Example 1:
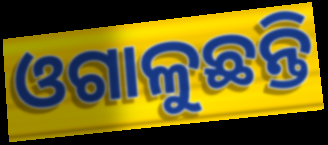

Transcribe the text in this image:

ଓଗାଳୁଛନ୍ତି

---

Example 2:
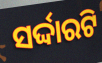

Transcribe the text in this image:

ସର୍ଦ୍ଦାରଟି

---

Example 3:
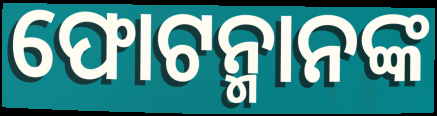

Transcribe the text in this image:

ଫୋଟନ୍ମାନଙ୍କ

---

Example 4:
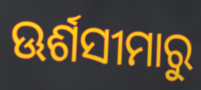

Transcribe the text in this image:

ଊର୍ଶସୀମାରୁ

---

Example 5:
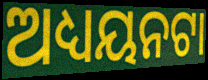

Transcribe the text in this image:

ଅଧ୍ୟୟନଟା